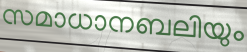
സമാധാനബലിയും